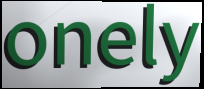
onely